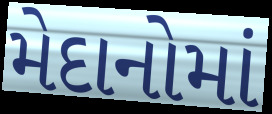
મેદાનોમાં